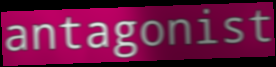
antagonist